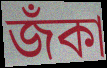
জঁকা